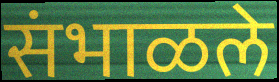
संभाळले